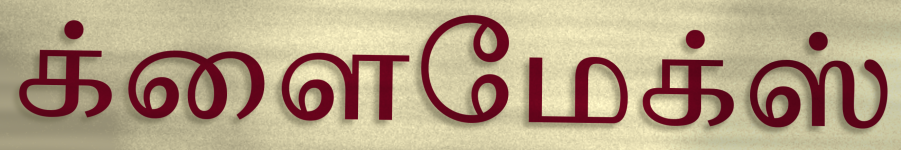
க்ளைமேக்ஸ்